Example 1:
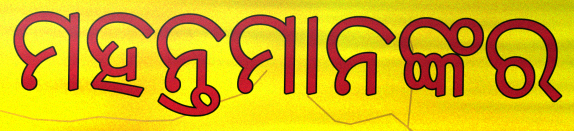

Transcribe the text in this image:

ମହନ୍ତମାନଙ୍କର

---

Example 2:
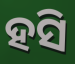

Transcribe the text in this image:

ହସି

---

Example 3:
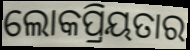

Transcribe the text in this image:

ଲୋକପ୍ରିୟତାର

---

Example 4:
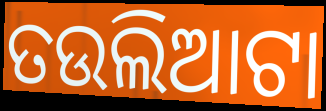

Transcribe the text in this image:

ତଉଲିଆଟା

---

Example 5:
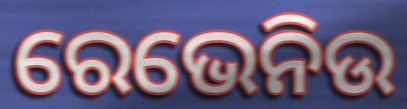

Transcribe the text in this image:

ରେଭେନିଉ